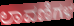
ಲಾವಣಿಗಳ